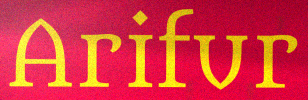
Arifur